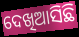
ଦେଖିଆସିଛି